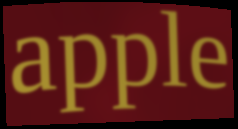
apple